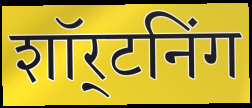
शॉर्टनिंग